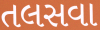
તલસવા